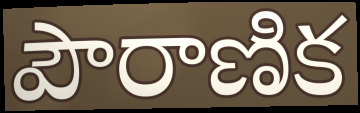
పౌరాణిక